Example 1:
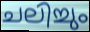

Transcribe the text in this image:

ചലിച്ചും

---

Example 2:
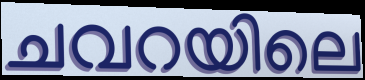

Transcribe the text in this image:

ചവറയിലെ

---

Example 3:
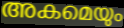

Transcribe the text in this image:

അകമെയും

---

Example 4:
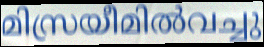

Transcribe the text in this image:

മിസ്രയീമിൽവച്ചു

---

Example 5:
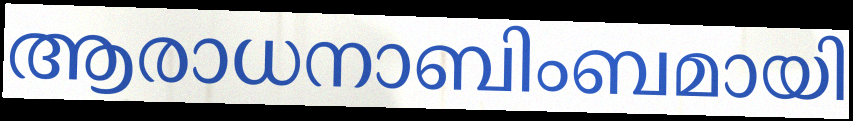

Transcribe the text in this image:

ആരാധനാബിംബമായി